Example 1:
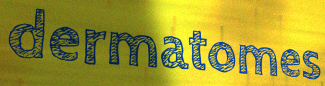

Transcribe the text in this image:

dermatomes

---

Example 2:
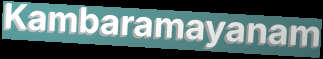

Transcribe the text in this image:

Kambaramayanam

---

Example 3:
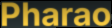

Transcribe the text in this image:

Pharao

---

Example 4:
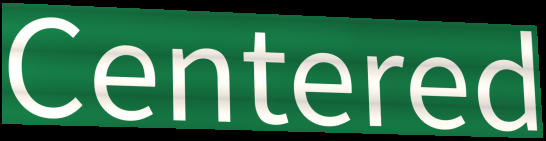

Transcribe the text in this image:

Centered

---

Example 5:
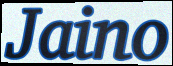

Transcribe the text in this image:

Jaino